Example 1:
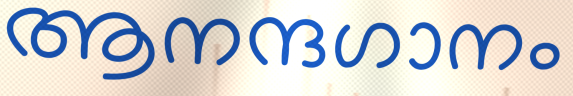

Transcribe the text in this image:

ആനന്ദഗാനം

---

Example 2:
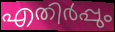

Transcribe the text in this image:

എതിർപ്പും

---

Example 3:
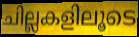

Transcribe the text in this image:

ചില്ലകളിലൂടെ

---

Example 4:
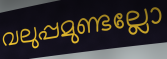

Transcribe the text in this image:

വലുപ്പമുണ്ടല്ലോ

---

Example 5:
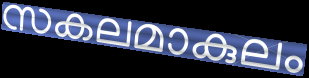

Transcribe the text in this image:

സകലമാകുലം